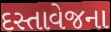
દસ્તાવેજના